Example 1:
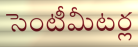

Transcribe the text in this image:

సెంటీమీటర్ల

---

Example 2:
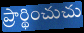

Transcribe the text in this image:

ప్రార్థించుచు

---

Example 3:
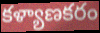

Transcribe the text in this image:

కళ్యాణకరం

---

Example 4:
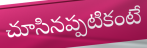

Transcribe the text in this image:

చూసినప్పటికంటే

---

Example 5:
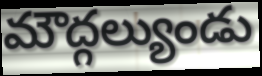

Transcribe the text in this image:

మౌద్గల్యుండు